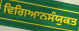
ਵਿਗਿਆਨਸੰਯੁਕਤ